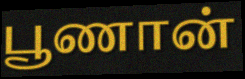
பூணான்